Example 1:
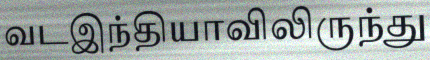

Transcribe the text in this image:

வடஇந்தியாவிலிருந்து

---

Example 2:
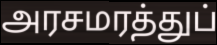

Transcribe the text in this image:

அரசமரத்துப்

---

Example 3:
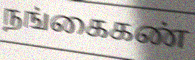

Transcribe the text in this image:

நங்கைகண்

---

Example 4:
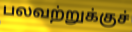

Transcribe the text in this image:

பலவற்றுக்குச்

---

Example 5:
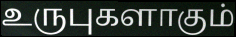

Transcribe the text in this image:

உருபுகளாகும்